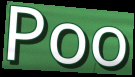
Poo